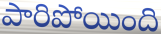
పారిపోయింది